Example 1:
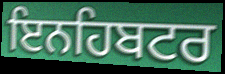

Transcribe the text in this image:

ਇਨਹਿਬਟਰ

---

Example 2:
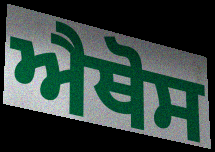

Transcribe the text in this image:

ਐਥੋਸ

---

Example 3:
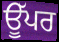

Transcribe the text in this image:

ਊੱਪਰ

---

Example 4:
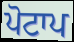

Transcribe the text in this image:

ਪੋਟਾਪ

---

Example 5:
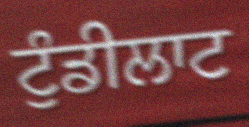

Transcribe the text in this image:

ਟੁੰਡੀਲਾਟ